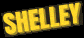
SHELLEY